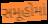
સમૂહોમાં